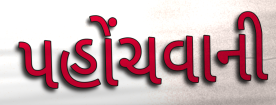
પહોંચવાની